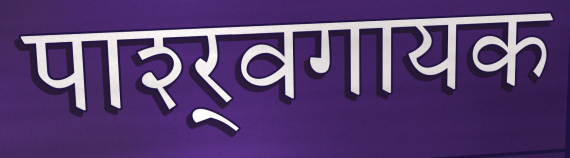
पाश्र्वगायक